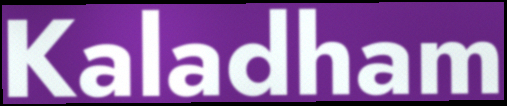
Kaladham